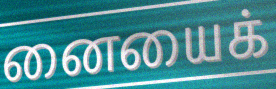
னையைக்